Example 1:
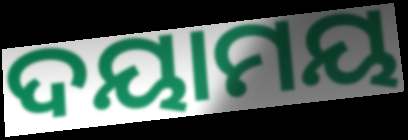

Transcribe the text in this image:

ଦୟାମୟ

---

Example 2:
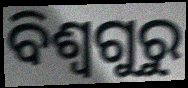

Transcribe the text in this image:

ବିଶ୍ୱଗୁରୁ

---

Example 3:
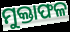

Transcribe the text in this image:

ମୁକ୍ତାଫଳ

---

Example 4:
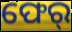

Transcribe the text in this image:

ଫେର୍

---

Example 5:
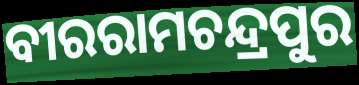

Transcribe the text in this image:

ବୀରରାମଚନ୍ଦ୍ରପୁର